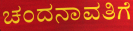
ಚಂದನಾವತಿಗೆ